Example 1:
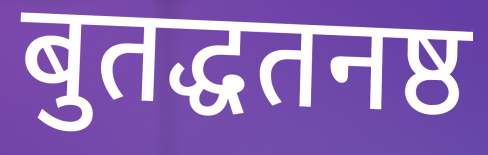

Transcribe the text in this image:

बुतद्धतनष्ठ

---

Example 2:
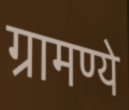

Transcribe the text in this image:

ग्रामण्ये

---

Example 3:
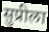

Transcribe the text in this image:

सुप्रीला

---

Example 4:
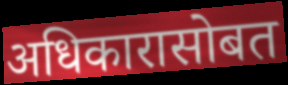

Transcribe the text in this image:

अधिकारासोबत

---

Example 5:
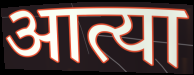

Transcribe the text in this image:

आत्या